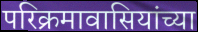
परिक्रमावासियांच्या